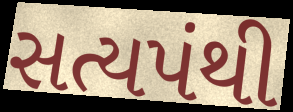
સત્યપંથી